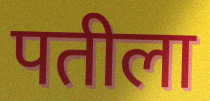
पतीला